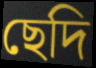
ছেদি